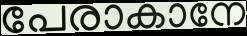
പേരാകാനേ